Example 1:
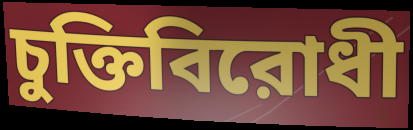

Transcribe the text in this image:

চুক্তিবিরোধী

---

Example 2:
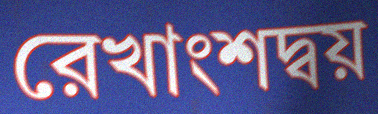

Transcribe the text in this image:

রেখাংশদ্বয়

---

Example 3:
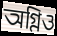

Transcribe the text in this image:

অগ্নিও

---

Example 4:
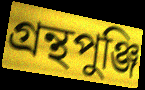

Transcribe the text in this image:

গ্রন্থপুঞ্জি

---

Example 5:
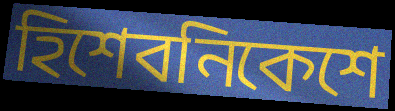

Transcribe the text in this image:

হিশেবনিকেশে